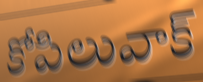
కోపిలువాక్